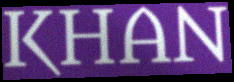
KHAN